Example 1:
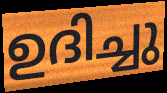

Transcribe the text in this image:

ഉദിച്ചു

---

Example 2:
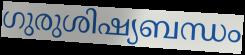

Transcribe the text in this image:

ഗുരുശിഷ്യബന്ധം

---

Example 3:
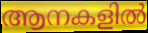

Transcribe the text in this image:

ആനകളിൽ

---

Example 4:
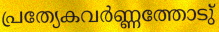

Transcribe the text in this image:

പ്രത്യേകവർണ്ണത്തോടു്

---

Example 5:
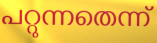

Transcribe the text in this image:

പറ്റുന്നതെന്ന്